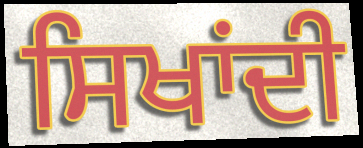
ਸਿਖਾਂਦੀ